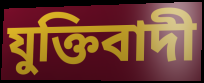
যুক্তিবাদী